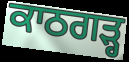
ਕਾਠਗਡ਼੍ਹ